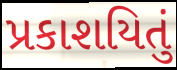
પ્રકાશયિતું